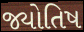
જ્યોતિષ